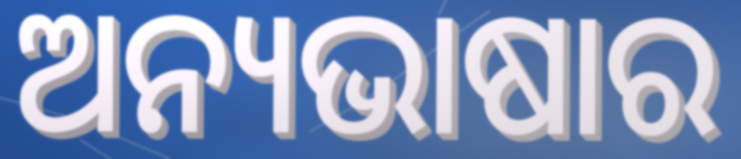
ଅନ୍ୟଭାଷାର